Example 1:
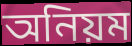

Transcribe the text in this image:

অনিয়ম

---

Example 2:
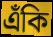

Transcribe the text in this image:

এঁকি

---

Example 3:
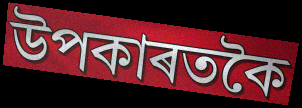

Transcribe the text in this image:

উপকাৰতকৈ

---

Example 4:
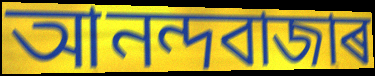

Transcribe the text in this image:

আনন্দবাজাৰ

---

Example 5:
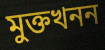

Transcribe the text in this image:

মুক্তখনন